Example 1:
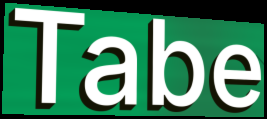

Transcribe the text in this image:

Tabe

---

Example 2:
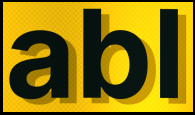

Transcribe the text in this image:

abl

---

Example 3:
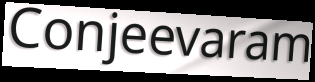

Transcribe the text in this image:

Conjeevaram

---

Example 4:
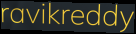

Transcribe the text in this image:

ravikreddy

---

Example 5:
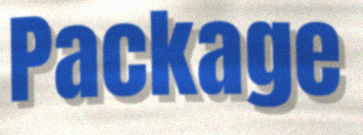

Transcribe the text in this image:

Package